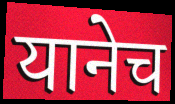
यानेच